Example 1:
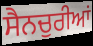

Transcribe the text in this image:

ਸੈਨਚੁਰੀਆਂ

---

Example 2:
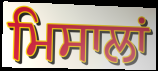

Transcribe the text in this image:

ਮਿਸਾਲਾਂ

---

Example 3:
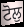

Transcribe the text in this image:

ਟੋਲੁ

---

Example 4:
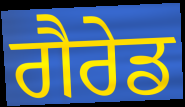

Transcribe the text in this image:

ਗੈਰੇਡ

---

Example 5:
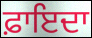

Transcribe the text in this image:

ਫ਼ਾਇਦਾ